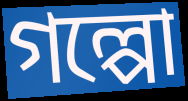
গল্পো